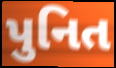
પુનિત